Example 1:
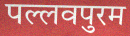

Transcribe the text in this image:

पल्लवपुरम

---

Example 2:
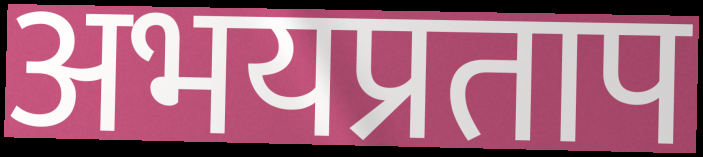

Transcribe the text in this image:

अभयप्रताप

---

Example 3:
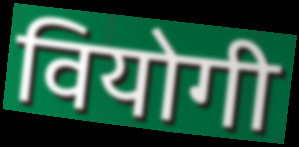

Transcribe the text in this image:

वियोगी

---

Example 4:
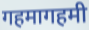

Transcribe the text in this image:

गहमागहमी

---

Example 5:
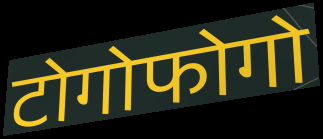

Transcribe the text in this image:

टोगोफोगो